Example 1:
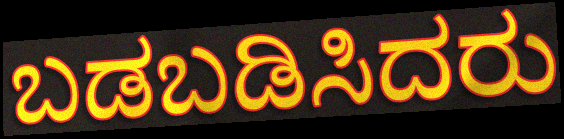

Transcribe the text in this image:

ಬಡಬಡಿಸಿದರು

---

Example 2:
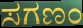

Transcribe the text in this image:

ಸಗಣಂ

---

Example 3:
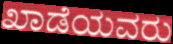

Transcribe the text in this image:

ಖಾಡೆಯವರು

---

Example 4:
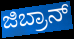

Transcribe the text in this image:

ಜಿಬ್ರಾನ್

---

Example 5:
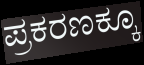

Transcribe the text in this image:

ಪ್ರಕರಣಕ್ಕೂ